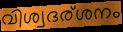
വിശ്വദര്ശനം